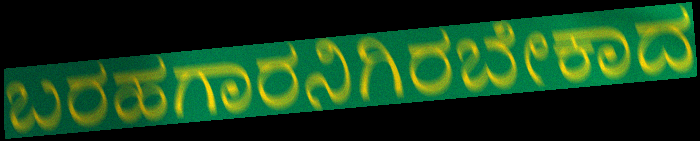
ಬರಹಗಾರನಿಗಿರಬೇಕಾದ